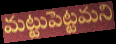
మట్టుపెట్టమని